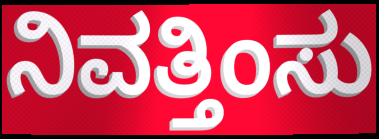
ನಿವತ್ತಿಂಸು